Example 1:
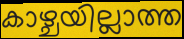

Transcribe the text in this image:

കാഴ്ചയില്ലാത്ത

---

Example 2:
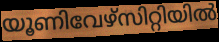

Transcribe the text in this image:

യൂണിവേഴ്സിറ്റിയിൽ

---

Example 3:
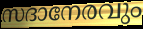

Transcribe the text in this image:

സദാനേരവും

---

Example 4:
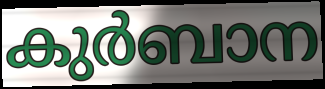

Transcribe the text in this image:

കുർബാന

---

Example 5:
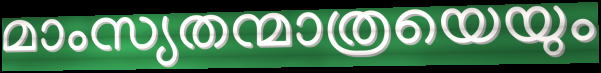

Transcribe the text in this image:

മാംസ്യതന്മാത്രയെയും